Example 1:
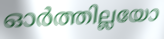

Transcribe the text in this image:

ഓർത്തില്ലയോ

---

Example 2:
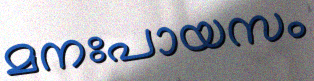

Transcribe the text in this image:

മനഃപായസം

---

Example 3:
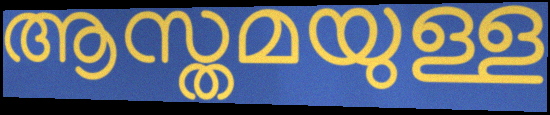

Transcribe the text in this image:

ആസ്തമയുള്ള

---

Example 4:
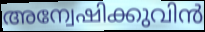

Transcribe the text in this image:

അന്വേഷിക്കുവിൻ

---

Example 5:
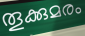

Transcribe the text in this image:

തൂക്കുമരം